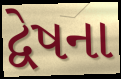
દ્વેષના